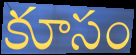
కూసం